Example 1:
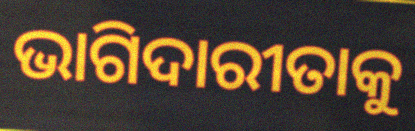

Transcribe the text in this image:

ଭାଗିଦାରୀତାକୁ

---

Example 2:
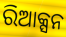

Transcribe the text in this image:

ରିଆକ୍ସନ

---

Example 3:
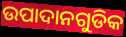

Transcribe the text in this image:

ଉପାଦାନଗୁଡିକ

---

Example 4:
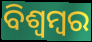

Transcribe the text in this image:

ବିଶ୍ଵମ୍ବର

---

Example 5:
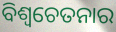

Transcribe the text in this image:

ବିଶ୍ଵଚେତନାର